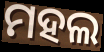
ମହଲ